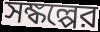
সঙ্কল্পের